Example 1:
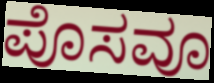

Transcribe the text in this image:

ಪೊಸವೂ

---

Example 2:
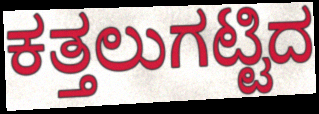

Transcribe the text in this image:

ಕತ್ತಲುಗಟ್ಟಿದ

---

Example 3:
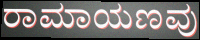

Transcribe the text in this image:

ರಾಮಾಯಣವು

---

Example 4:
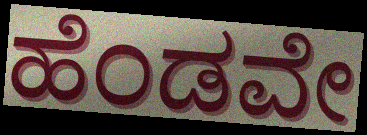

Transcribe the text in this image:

ಹೆಂಡವೇ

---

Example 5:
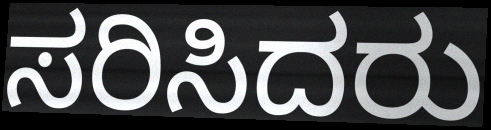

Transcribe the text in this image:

ಸರಿಸಿದರು